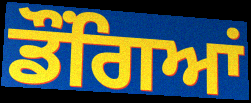
ਡੌਂਗਿਆਂ